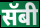
सॅबी